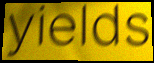
yields